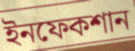
ইনফেকশান